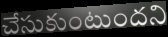
చేసుకుంటుందని